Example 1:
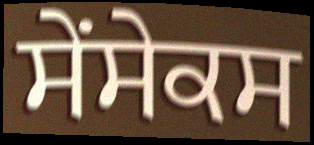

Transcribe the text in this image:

ਸੇਂਸੇਕਸ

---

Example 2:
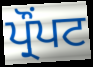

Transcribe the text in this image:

ਪ੍ਰੌੰਪਟ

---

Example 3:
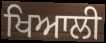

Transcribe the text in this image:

ਖਿਆਲੀ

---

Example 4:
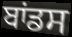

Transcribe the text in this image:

ਬਾਂਡਸ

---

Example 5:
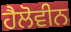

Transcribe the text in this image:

ਹੈਲੋਵੀਨ